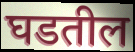
घडतील